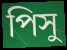
পিসু